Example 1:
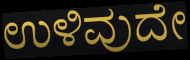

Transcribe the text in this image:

ಉಳಿವುದೇ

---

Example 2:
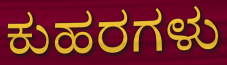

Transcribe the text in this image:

ಕುಹರಗಳು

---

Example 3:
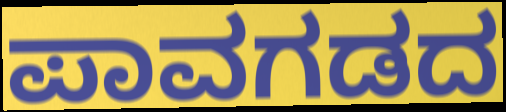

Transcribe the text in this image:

ಪಾವಗಡದ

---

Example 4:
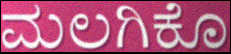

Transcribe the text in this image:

ಮಲಗಿಕೊ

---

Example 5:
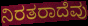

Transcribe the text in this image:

ನಿರತರಾದೆವು